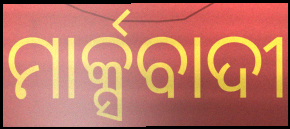
ମାର୍କ୍ସବାଦୀ